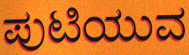
ಪುಟಿಯುವ